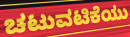
ಚಟುವಟಿಕೆಯು